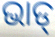
ଭାଡ୍